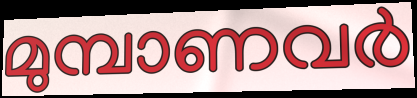
മുമ്പാണവർ